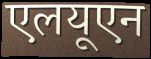
एलयूएन